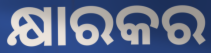
କ୍ଷାରକର